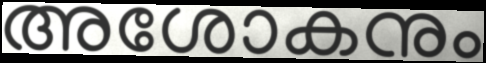
അശോകനും